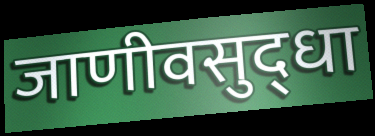
जाणीवसुद्धा